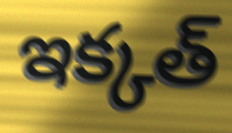
ఇక్కత్